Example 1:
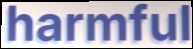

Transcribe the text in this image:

harmful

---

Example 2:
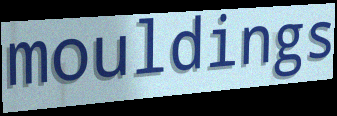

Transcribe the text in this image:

mouldings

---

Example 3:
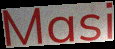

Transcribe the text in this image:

Masi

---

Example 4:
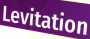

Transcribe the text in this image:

Levitation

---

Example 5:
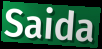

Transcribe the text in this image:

Saida